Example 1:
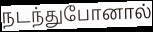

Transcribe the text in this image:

நடந்துபோனால்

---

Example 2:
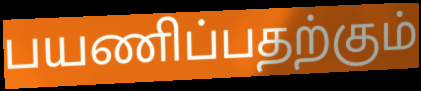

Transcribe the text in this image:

பயணிப்பதற்கும்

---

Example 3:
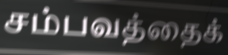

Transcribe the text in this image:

சம்பவத்தைக்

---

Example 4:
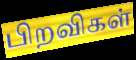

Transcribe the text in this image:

பிறவிகள்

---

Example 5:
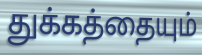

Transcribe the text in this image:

துக்கத்தையும்